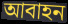
আবাহন